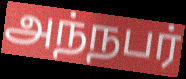
அந்நபர்